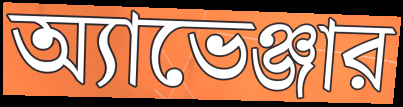
অ্যাভেঞ্জার